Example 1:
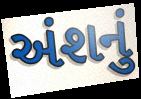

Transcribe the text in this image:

અંશનું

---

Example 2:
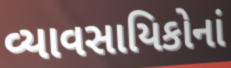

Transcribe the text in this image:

વ્યાવસાયિકોનાં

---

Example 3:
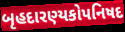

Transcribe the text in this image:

બૃહદારણ્યકોપનિષદ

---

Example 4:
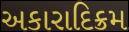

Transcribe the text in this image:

અકારાદિક્રમ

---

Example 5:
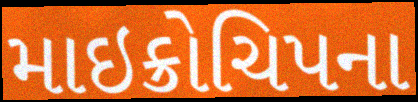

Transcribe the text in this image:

માઇક્રોચિપના